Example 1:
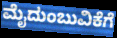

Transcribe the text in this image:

ಮೈದುಂಬುವಿಕೆಗೆ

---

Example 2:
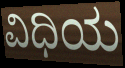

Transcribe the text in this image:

ವಿಧಿಯ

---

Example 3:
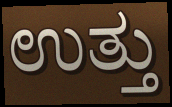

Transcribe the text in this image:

ಉತ್ತು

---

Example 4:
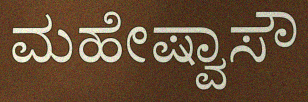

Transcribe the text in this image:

ಮಹೇಷ್ವಾಸೌ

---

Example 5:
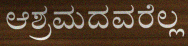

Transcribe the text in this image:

ಆಶ್ರಮದವರೆಲ್ಲ